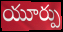
యూర్పు